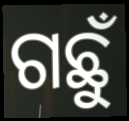
ଗଛୁଁ